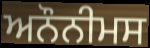
ਅਨੌਨੀਮਸ